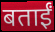
बताईं